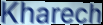
Kharech